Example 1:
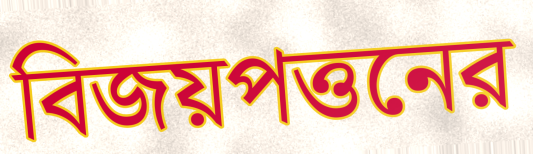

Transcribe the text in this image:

বিজয়পত্তনের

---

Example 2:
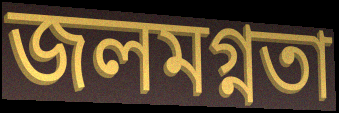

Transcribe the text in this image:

জলমগ্নতা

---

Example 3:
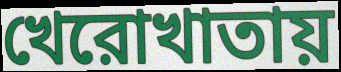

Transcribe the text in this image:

খেরোখাতায়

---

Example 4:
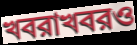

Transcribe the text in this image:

খবরাখবরও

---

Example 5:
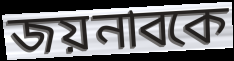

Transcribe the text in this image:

জয়নাবকে